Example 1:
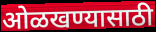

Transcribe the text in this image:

ओळखण्यासाठी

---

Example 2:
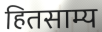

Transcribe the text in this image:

हितसाम्य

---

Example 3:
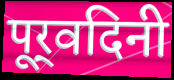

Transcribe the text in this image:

पूर्वदिनी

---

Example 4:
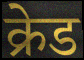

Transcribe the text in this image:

क्रेड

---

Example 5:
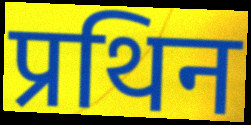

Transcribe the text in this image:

प्रथिन